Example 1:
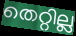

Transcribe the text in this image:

തെറ്റില്ല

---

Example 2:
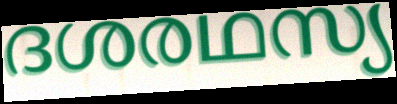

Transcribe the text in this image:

ദശരഥസ്യ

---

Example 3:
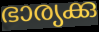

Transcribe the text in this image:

ഭാര്യക്കു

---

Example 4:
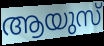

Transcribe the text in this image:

ആയുസ്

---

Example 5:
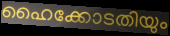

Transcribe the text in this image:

ഹൈക്കോടതിയും